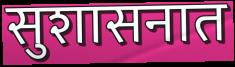
सुशासनात